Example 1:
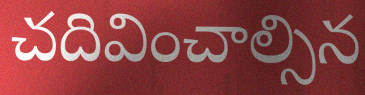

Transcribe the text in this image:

చదివించాల్సిన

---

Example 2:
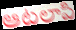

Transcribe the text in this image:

ఆటలాపి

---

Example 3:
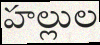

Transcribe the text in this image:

హల్లుల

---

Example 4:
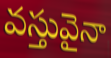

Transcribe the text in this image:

వస్తువైనా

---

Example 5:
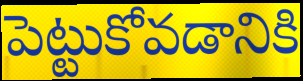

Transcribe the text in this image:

పెట్టుకోవడానికి